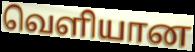
வெளியான